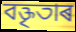
বক্তৃতাৰ